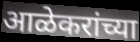
आळेकरांच्या